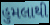
હુમલાથી